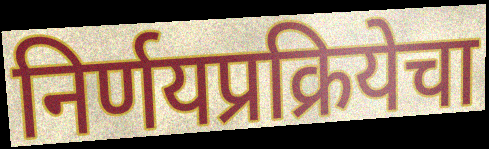
निर्णयप्रक्रियेचा